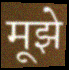
मूझे